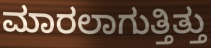
ಮಾರಲಾಗುತ್ತಿತ್ತು